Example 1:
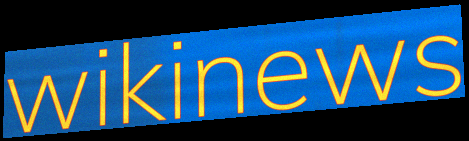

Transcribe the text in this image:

wikinews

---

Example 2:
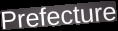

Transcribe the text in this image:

Prefecture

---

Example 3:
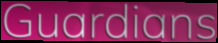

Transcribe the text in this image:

Guardians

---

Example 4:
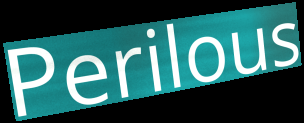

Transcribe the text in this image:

Perilous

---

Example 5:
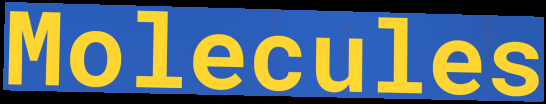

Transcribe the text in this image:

Molecules